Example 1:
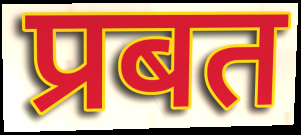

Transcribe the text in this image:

प्रबत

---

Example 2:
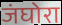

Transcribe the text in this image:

जंघोरा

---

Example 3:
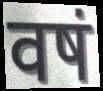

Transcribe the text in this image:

वषं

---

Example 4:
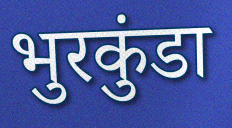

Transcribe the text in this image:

भुरकुंडा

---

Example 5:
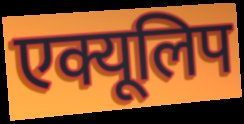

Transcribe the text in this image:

एक्यूलिप